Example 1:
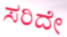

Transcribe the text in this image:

ಸರಿದೇ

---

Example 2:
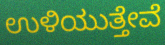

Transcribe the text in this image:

ಉಳಿಯುತ್ತೇವೆ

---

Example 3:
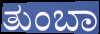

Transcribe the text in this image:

ತುಂಬಾ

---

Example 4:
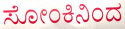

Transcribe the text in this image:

ಸೋಂಕಿನಿಂದ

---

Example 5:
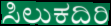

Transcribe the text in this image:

ಸಿಲುಕದಿರಿ